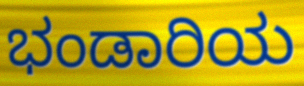
ಭಂಡಾರಿಯ